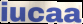
iucaa